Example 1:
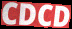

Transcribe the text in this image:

CDCD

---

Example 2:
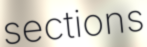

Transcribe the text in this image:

sections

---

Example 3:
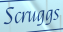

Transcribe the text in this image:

Scruggs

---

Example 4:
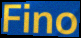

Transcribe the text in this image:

Fino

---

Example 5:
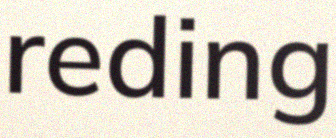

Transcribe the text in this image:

reding